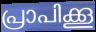
പ്രാപിക്കൂ